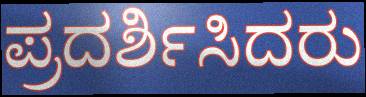
ಪ್ರದರ್ಶಿಸಿದರು